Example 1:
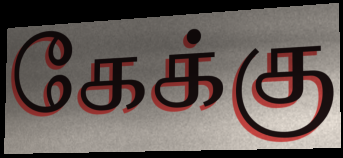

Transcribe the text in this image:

கேக்கு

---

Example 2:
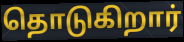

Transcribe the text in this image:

தொடுகிறார்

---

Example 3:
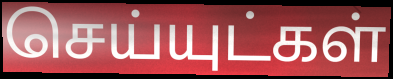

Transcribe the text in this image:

செய்யுட்கள்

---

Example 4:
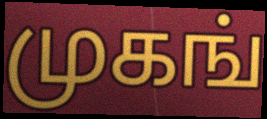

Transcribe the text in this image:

முகங்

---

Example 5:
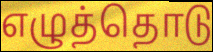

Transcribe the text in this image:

எழுத்தொடு